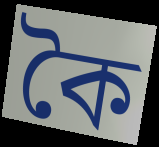
কৈ